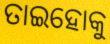
ତାଇହୋକୁ